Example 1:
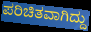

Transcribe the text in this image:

ಪರಿಚಿತವಾಗಿದ್ದು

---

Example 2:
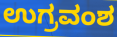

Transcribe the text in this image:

ಉಗ್ರವಂಶ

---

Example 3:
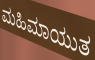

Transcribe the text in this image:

ಮಹಿಮಾಯುತ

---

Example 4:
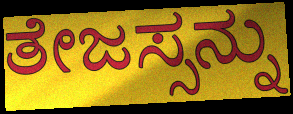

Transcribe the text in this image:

ತೇಜಸ್ಸನ್ನು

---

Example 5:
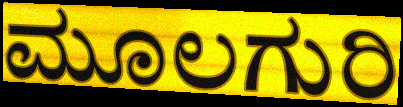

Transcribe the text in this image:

ಮೂಲಗುರಿ